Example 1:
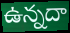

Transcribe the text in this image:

ఉన్నదా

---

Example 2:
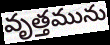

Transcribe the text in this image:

వృత్తమును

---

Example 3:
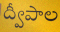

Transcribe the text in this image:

ద్వీపాల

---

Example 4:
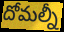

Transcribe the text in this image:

దోమల్నీ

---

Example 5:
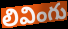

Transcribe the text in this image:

లివింగు